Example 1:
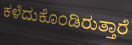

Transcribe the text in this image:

ಕಳೆದುಕೊಂಡಿರುತ್ತಾರೆ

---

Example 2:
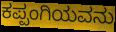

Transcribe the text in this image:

ಕಪ್ಪಂಗಿಯವನು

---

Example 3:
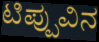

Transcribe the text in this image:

ಟಿಪ್ಪುವಿನ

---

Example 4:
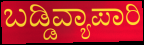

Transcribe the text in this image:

ಬಡ್ಡಿವ್ಯಾಪಾರಿ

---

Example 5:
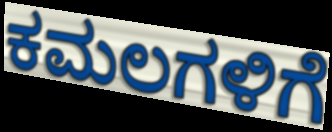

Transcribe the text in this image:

ಕಮಲಗಳಿಗೆ